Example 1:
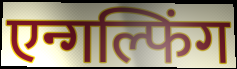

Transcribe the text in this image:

एन्गल्फिंग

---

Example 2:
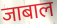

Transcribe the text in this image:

जाबाल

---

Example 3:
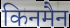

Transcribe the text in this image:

किनमैन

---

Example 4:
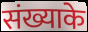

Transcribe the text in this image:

संख्याके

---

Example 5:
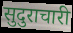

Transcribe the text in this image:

सुदुराचारी